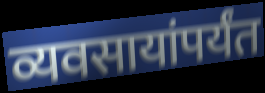
व्यवसायांपर्यंत